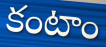
కంటాం